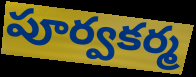
పూర్వకర్మ